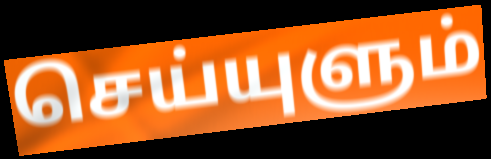
செய்யுளும்